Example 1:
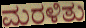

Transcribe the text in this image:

ಮರಳಿತು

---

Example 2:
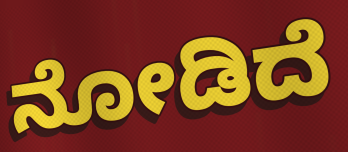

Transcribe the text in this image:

ನೋಡಿದೆ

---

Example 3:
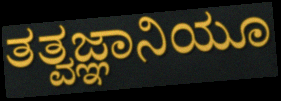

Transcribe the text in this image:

ತತ್ವಜ್ಞಾನಿಯೂ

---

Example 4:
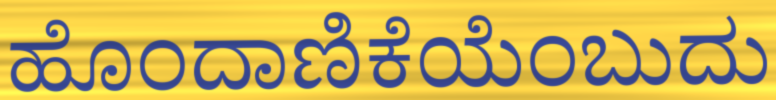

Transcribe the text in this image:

ಹೊಂದಾಣಿಕೆಯೆಂಬುದು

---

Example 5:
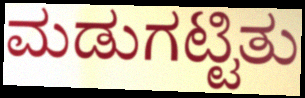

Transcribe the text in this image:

ಮಡುಗಟ್ಟಿತು